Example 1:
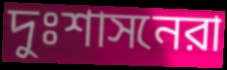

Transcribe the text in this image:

দুঃশাসনেরা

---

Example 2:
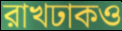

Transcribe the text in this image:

রাখঢাকও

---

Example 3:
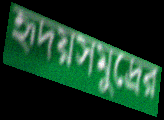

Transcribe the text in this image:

হৃদয়সমুদ্রের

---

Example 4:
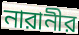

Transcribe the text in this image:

নারানীর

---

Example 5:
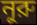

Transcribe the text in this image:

নুরু